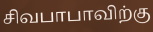
சிவபாபாவிற்கு